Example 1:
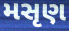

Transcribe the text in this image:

મસૃણ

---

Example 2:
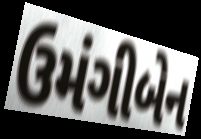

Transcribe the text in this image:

ઉમંગીબેન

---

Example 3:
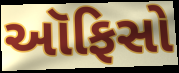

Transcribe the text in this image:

ઑફિસો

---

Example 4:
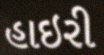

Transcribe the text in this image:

હાઇરી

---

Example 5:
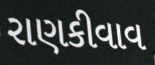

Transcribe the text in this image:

રાણકીવાવ